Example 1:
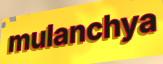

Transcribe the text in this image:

mulanchya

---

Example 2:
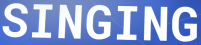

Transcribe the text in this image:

SINGING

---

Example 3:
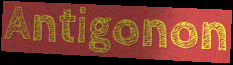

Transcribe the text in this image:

Antigonon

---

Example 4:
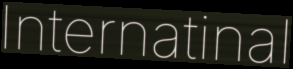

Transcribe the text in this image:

Internatinal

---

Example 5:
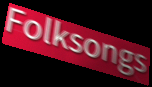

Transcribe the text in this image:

Folksongs